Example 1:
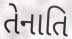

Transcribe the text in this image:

તેનાતિ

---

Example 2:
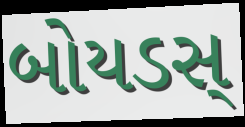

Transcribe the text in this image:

બોયડસ્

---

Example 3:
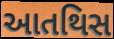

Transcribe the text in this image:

આતથિસ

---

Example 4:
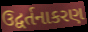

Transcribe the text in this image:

ઉદ્વર્તનાકરણ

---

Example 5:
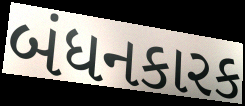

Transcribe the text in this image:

બંધનકારક